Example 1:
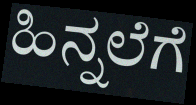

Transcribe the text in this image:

ಹಿನ್ನಲೆಗೆ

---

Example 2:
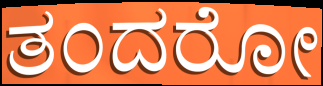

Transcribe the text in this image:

ತಂದರೋ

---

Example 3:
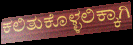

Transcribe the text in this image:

ಕಲಿತುಕೊಳ್ಳಲಿಕ್ಕಾಗಿ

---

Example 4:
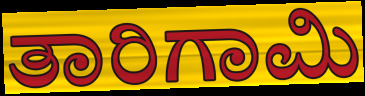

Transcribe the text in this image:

ತಾರಿಗಾಮಿ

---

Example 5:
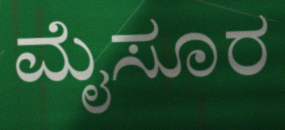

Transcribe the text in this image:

ಮೈಸೂರ